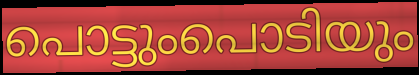
പൊട്ടുംപൊടിയും